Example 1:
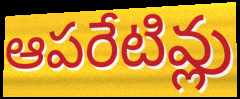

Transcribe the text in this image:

ఆపరేటివ్లు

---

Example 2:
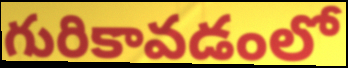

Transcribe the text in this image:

గురికావడంలో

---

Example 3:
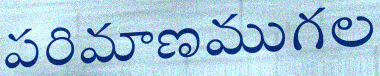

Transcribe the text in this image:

పరిమాణముగల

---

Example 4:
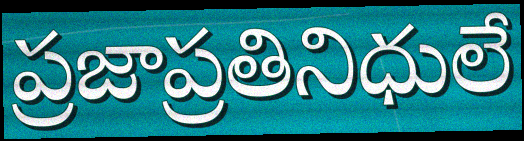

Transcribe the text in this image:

ప్రజాప్రతినిధులే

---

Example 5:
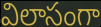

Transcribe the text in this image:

విలాసంగా